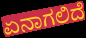
ಏನಾಗಲಿದೆ